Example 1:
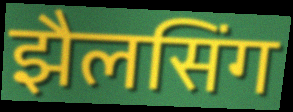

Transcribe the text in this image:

झैलसिंग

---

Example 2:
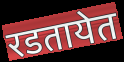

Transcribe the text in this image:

रडतायेत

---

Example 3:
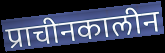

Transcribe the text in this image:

प्राचीनकालीन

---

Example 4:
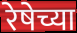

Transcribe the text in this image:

रेषेच्या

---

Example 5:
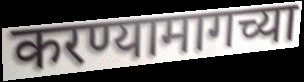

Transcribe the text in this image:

करण्यामागच्या